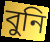
বুনি